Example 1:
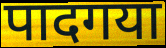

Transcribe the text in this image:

पादगया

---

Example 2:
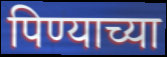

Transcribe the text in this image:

पिण्याच्या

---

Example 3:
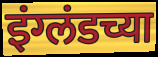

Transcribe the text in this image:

इंग्‍लंडच्या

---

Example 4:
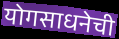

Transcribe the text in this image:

योगसाधनेची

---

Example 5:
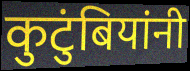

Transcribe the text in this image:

कुटुंबियांनी